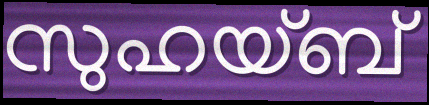
സുഹയ്ബ്